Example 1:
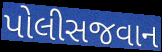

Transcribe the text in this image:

પોલીસજવાન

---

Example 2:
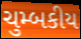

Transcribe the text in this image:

ચુમ્બકીય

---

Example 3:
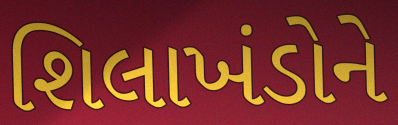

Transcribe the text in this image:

શિલાખંડોને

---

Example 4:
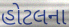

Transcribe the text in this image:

હોટલના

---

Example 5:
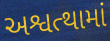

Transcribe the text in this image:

અશ્વત્થામાં